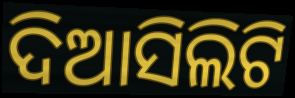
ଦିଆସିଲିଟି